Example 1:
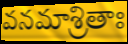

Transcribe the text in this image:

వనమాశ్రితాః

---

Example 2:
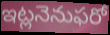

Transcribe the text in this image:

ఇట్లనెనుఫరో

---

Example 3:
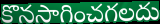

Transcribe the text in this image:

కొనసాగించగలదు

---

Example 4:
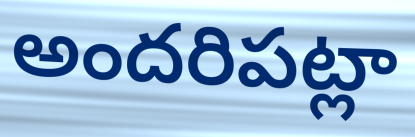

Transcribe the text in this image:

అందరిపట్లా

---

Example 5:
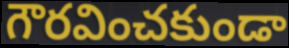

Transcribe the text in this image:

గౌరవించకుండా